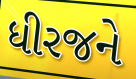
ધીરજને